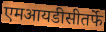
एमआयडीसीतर्फे